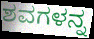
ಶವಗಳನ್ನ